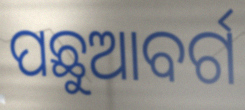
ପଛୁଆବର୍ଗ